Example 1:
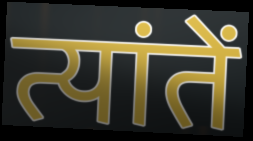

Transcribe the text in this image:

त्यांतें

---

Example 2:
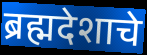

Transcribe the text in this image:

ब्रह्मदेशाचे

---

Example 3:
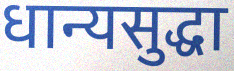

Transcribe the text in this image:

धान्यसुद्धा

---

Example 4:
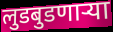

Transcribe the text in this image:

लुडबुडणाऱ्या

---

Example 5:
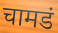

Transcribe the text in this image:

चामडं